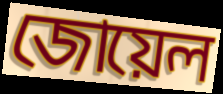
জোয়েল